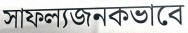
সাফল্যজনকভাবে